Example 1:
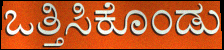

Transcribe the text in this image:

ಒತ್ತಿಸಿಕೊಂಡು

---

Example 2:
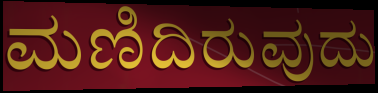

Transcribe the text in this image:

ಮಣಿದಿರುವುದು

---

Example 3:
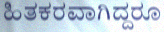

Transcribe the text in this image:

ಹಿತಕರವಾಗಿದ್ದರೂ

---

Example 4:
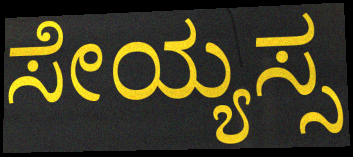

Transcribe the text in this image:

ಸೇಯ್ಯಸ್ಸ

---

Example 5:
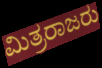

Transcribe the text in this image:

ಮಿತ್ರರಾಜರು